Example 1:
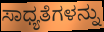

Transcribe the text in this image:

ಸಾಧ್ಯತೆಗಳನ್ನು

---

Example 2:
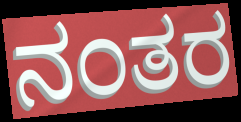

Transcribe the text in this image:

ನಂತರ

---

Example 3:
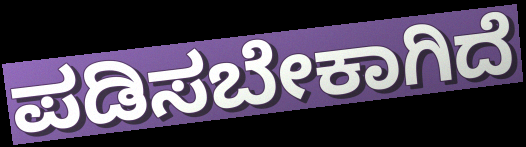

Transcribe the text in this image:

ಪಡಿಸಬೇಕಾಗಿದೆ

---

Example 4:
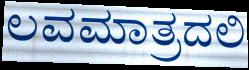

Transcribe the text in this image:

ಲವಮಾತ್ರದಲಿ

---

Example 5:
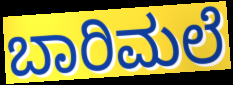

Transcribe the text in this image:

ಬಾರಿಮಲೆ